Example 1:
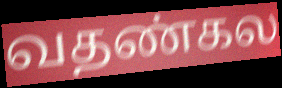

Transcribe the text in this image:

வதண்கல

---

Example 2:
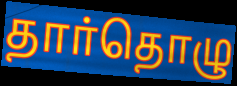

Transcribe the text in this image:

தார்தொழு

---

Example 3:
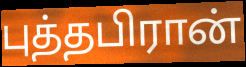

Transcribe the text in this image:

புத்தபிரான்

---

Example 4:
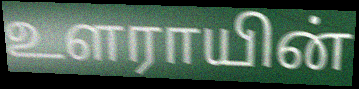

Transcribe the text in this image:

உளராயின்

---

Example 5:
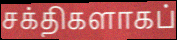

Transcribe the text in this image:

சக்திகளாகப்